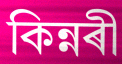
কিন্নৰী